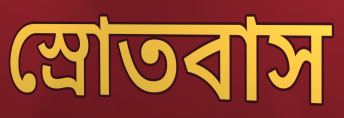
স্রোতবাস